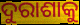
ଦୁରାଶାକୁ